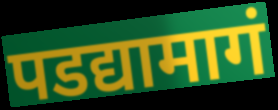
पडद्यामागं